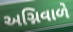
અગ્નિવાળે